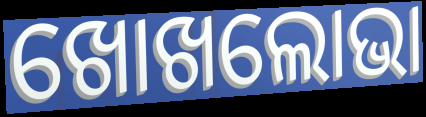
ଖୋଖଲୋଭା